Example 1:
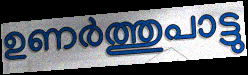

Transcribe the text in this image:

ഉണർത്തുപാട്ടു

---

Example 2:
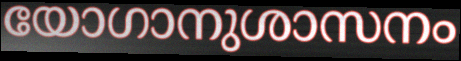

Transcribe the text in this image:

യോഗാനുശാസനം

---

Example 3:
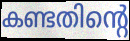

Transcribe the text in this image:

കണ്ടതിന്റെ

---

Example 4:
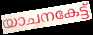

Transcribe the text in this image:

യാചനകേട്ട്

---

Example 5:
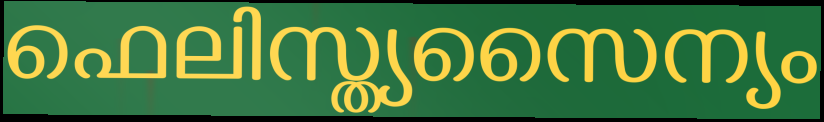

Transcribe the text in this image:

ഫെലിസ്ത്യസൈന്യം